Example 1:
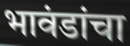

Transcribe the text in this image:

भावंडांचा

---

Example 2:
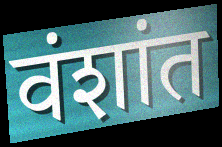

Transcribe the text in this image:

वंशांत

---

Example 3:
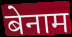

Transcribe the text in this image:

बेनाम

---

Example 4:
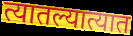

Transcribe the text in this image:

त्यातल्यात्यात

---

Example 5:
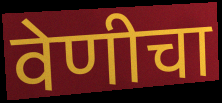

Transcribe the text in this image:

वेणीचा